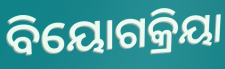
ବିୟୋଗକ୍ରିୟା